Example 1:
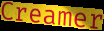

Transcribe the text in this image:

Creamer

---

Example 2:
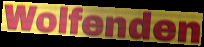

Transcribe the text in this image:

Wolfenden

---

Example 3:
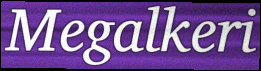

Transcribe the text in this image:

Megalkeri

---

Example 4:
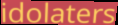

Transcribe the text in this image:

idolaters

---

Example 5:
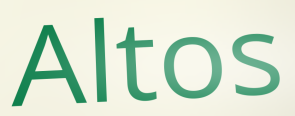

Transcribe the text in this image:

Altos